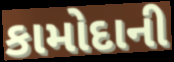
કામોદાની